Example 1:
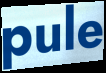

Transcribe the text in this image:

pule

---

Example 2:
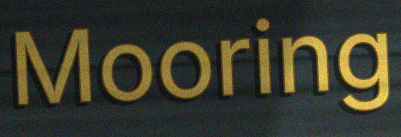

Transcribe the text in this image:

Mooring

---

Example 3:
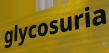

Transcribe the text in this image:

glycosuria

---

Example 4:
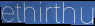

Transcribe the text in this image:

ethirthu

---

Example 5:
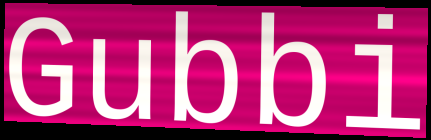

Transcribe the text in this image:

Gubbi